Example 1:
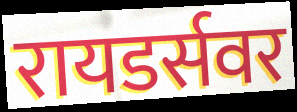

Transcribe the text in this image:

रायडर्सवर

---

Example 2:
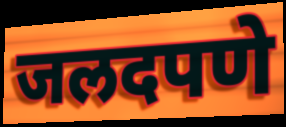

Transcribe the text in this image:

जलदपणे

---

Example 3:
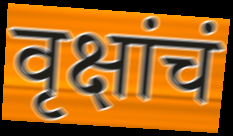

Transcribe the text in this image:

वृक्षांचं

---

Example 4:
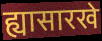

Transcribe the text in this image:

ह्यासारखे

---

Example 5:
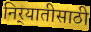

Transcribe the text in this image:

निर्यातीसाठी